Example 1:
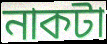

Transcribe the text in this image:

নাকটা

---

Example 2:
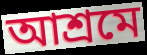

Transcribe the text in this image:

আশ্রমে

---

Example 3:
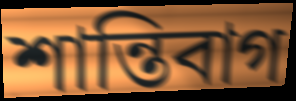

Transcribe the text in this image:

শান্তিবাগ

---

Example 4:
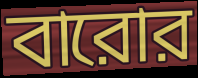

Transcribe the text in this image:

বারোর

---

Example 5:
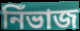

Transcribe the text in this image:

নিঁভাজ